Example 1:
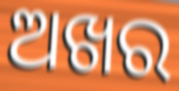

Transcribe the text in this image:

ଅଖର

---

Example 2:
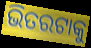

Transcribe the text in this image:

ଭିତରଟାକୁ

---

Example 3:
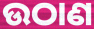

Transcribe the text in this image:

ଉଠାଣ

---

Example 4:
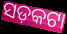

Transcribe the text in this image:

ସଡ଼କଟା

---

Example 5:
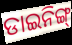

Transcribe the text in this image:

ଡାଇନିଙ୍ଗ୍